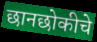
छानछोकीचे